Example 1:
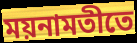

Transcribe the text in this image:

ময়নামতীতে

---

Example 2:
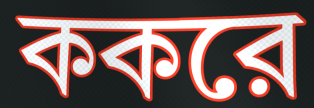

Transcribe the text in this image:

ককরে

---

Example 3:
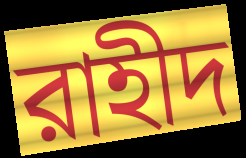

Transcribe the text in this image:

রাহীদ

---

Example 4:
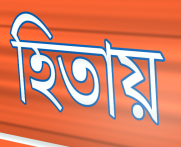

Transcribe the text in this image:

হিতায়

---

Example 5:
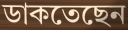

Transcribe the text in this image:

ডাকতেছেন